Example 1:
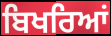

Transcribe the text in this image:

ਬਿਖਰਿਆਂ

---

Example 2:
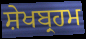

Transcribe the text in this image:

ਸ਼ੇਖਬ੍ਰਹਮ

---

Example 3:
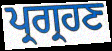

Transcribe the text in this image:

ਪ੍ਰਗ੍ਰਹਣ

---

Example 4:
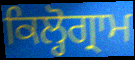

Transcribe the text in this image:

ਕਿਲ੍ਹੋਗ੍ਰਾਮ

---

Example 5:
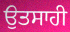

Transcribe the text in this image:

ਉਤਸਾਹੀ